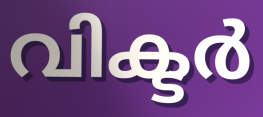
വിക്ടർ